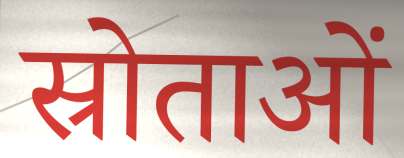
स्रोताओं